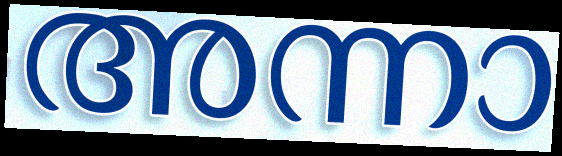
അന്നാ